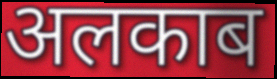
अलकाब